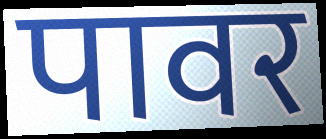
पावर